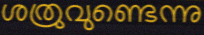
ശത്രുവുണ്ടെന്നു